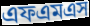
এফএমএস